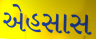
એહસાસ